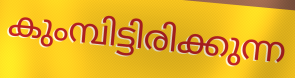
കുംമ്പിട്ടിരിക്കുന്ന